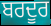
ਬਰਦੂਰ